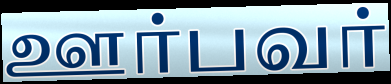
ஊர்பவர்